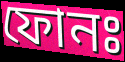
ফোনঃ